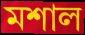
মশাল